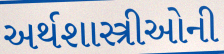
અર્થશાસ્ત્રીઓની